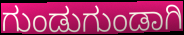
ಗುಂಡುಗುಂಡಾಗಿ